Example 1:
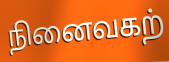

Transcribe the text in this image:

நினைவகற்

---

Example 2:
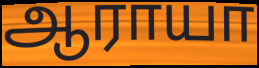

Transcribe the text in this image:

ஆராயா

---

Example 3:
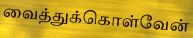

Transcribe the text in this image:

வைத்துக்கொள்வேன்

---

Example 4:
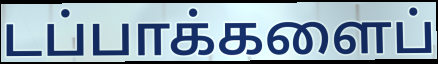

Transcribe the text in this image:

டப்பாக்களைப்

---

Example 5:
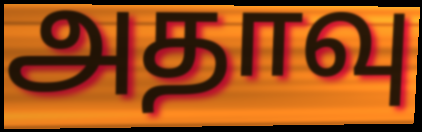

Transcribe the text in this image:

அதாவு